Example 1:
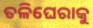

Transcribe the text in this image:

ତଳିଘେରାକୁ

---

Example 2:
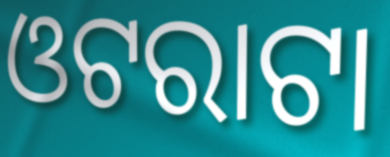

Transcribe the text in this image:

ଓଟରାଟା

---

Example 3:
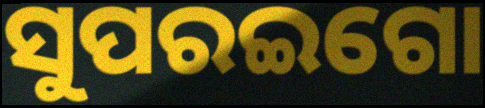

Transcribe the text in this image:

ସୁପରଇଗୋ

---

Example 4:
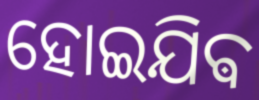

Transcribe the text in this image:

ହୋଇଯିଵ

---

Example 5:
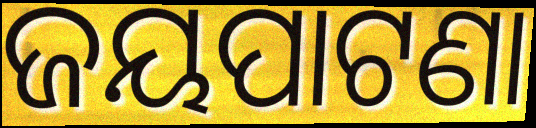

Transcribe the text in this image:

ଜୟପାଟଣା